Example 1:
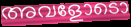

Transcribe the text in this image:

അവളോടൊ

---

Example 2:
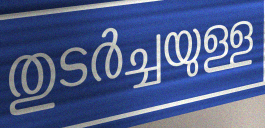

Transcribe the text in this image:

തുടർച്ചയുള്ള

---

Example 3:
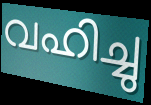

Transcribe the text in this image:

വഹിച്ചു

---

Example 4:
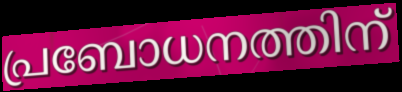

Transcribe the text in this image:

പ്രബോധനത്തിന്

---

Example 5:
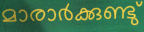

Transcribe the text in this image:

മാരാർക്കുണ്ടു്